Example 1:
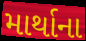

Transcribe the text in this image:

માર્થાના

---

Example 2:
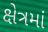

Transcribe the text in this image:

ક્ષેત્રમાં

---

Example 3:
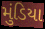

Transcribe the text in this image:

મુંડિયા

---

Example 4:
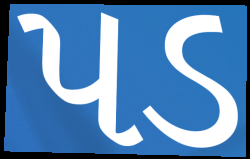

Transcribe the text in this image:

પડ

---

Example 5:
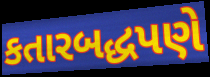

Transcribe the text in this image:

કતારબદ્ધપણે